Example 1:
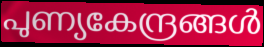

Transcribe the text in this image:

പുണ്യകേന്ദ്രങ്ങൾ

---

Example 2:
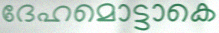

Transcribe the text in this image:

ദേഹമൊട്ടാകെ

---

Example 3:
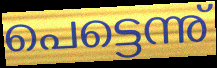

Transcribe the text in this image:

പെട്ടെന്നു്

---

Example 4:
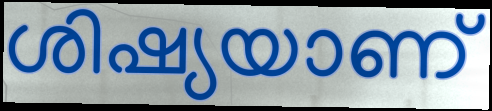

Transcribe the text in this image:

ശിഷ്യയാണ്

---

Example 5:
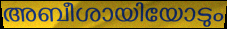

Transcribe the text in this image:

അബീശായിയോടും